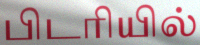
பிடரியில்